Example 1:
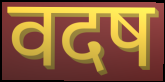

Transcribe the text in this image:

वदष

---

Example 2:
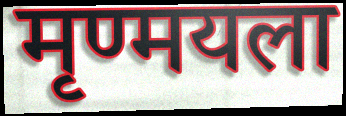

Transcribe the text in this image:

मृण्मयला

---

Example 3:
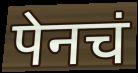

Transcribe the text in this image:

पेनचं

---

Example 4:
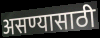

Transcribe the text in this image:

असण्यासाठी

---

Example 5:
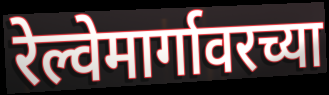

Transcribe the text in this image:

रेल्वेमार्गावरच्या